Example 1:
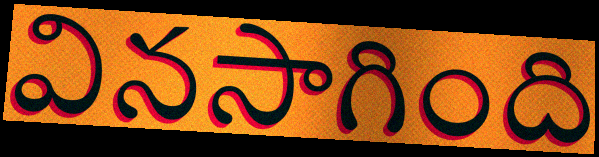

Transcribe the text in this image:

వినసాగింది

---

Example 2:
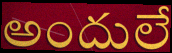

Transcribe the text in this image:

అందులే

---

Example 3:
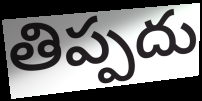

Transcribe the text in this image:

తిప్పదు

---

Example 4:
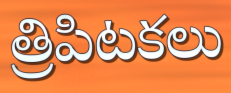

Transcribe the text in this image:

త్రిపిటకలు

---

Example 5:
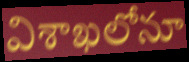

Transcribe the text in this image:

విశాఖలోనూ